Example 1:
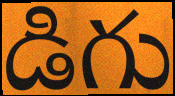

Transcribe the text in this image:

డిగు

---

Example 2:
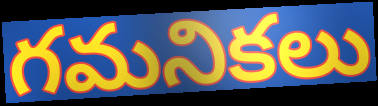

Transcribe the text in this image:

గమనికలు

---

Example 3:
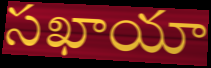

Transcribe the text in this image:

సఖాయా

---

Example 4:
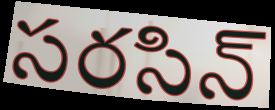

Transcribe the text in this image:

సరసిన్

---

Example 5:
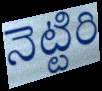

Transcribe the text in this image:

నెట్టిరి